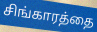
சிங்காரத்தை